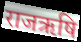
राजऋषि